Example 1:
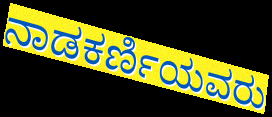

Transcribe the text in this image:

ನಾಡಕರ್ಣಿಯವರು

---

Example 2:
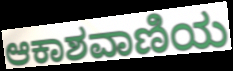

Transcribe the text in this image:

ಆಕಾಶವಾಣಿಯ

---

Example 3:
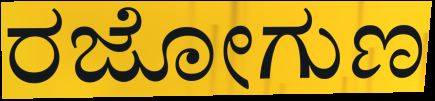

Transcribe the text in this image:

ರಜೋಗುಣ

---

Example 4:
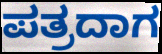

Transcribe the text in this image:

ಪತ್ರದಾಗ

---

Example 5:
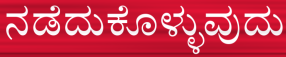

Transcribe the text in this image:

ನಡೆದುಕೊಳ್ಳುವುದು